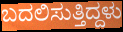
ಬದಲಿಸುತ್ತಿದ್ದಳು